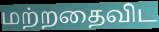
மற்றதைவிட